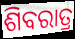
ଶିବରାତ୍ର